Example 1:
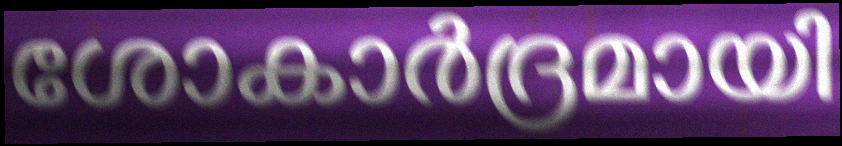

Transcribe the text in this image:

ശോകാർദ്രമായി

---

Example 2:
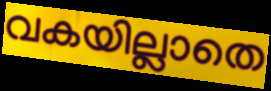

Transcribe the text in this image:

വകയില്ലാതെ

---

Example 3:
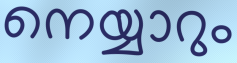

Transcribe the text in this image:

നെയ്യാറും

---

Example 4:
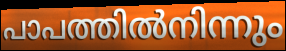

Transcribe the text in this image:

പാപത്തിൽനിന്നും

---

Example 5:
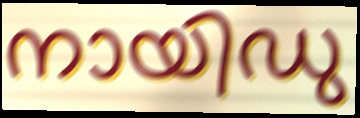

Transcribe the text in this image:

നായിഡു